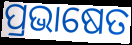
ପ୍ରଭାଷେତ